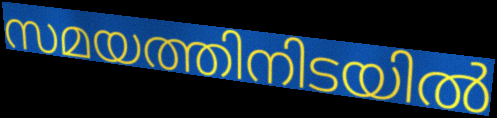
സമയത്തിനിടയിൽ